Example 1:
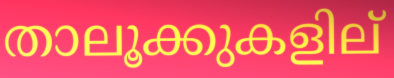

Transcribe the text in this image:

താലൂക്കുകളില്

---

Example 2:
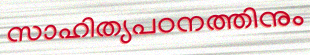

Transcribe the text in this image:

സാഹിത്യപഠനത്തിനും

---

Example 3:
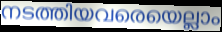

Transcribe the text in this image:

നടത്തിയവരെയെല്ലാം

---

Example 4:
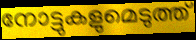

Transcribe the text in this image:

നോട്ടുകളുമെടുത്ത്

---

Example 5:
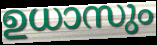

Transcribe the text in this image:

ഉധാസും